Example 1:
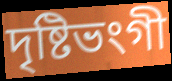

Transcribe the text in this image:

দৃষ্টিভংগী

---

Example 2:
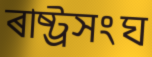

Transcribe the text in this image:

ৰাষ্ট্ৰসংঘ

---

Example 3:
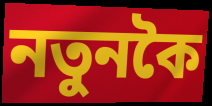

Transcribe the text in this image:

নতুনকৈ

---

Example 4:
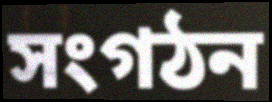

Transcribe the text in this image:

সংগঠন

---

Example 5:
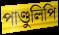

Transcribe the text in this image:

পাণ্ডুলিপি